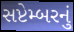
સપ્ટેમ્બરનું